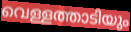
വെള്ളത്താടിയും